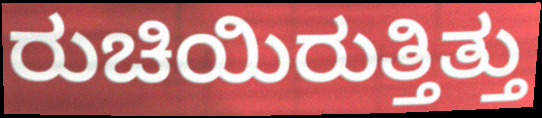
ರುಚಿಯಿರುತ್ತಿತ್ತು